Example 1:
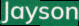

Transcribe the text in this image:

Jayson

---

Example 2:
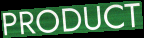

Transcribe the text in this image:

PRODUCT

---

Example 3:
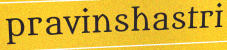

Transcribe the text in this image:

pravinshastri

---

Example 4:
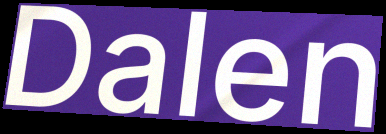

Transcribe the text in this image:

Dalen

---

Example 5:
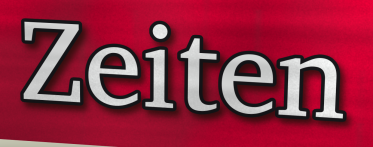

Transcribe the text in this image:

Zeiten